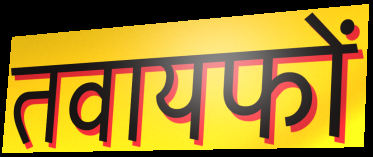
तवायफों